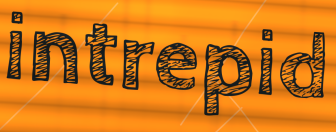
intrepid